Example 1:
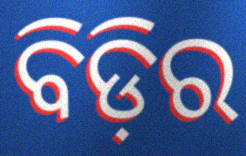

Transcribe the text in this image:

ବିଡ଼ିର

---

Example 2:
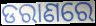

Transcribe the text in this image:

ଡରାଣରେ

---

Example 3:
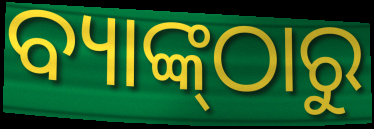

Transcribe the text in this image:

ବ୍ୟାଙ୍କ୍‌ଠାରୁ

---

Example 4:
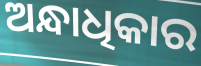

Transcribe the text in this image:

ଅନ୍ଧାଧିକାର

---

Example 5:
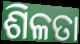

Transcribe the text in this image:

ଶିଳତା